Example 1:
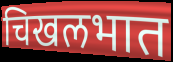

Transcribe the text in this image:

चिखलभात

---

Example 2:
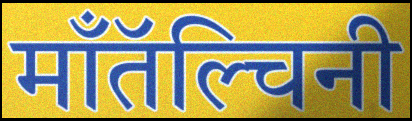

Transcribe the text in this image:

माँतॅल्चिनी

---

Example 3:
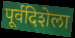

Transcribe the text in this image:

पूर्वदिशेला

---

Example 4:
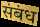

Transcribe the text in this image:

संबंध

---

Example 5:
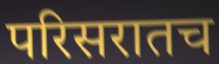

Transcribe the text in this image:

परिसरातच